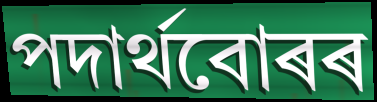
পদাৰ্থবোৰৰ